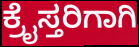
ಕ್ರೈಸ್ತರಿಗಾಗಿ